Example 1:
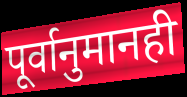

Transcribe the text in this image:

पूर्वानुमानही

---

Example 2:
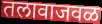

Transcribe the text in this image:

तलावाजवळ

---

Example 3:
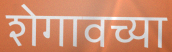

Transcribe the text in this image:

शेगावच्या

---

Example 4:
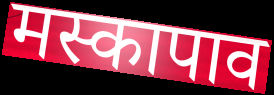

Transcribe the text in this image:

मस्कापाव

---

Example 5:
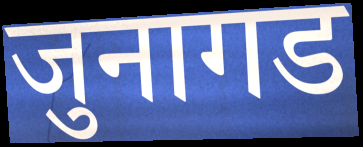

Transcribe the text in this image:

जुनागड